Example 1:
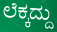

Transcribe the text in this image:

ಲೆಕ್ಕದ್ದು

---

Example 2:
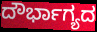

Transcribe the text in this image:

ದೌರ್ಭಾಗ್ಯದ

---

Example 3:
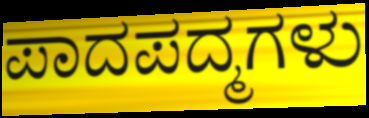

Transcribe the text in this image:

ಪಾದಪದ್ಮಗಳು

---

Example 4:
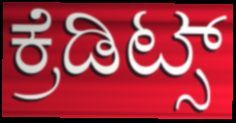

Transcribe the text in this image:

ಕ್ರೆಡಿಟ್ಸ್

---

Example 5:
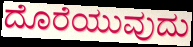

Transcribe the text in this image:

ದೊರೆಯುವುದು